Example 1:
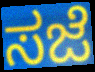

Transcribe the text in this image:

ಸಜೆ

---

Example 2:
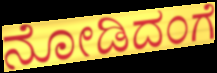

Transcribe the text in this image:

ನೋಡಿದಂಗೆ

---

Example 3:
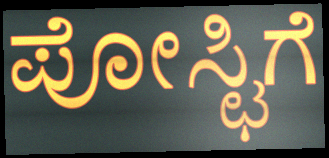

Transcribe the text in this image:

ಪೋಸ್ಟಿಗೆ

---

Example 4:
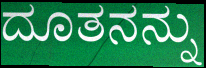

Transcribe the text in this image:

ದೂತನನ್ನು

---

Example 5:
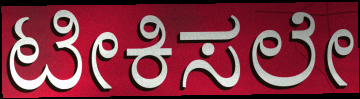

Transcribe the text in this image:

ಟೀಕಿಸಲೇ